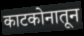
काटकोनातून